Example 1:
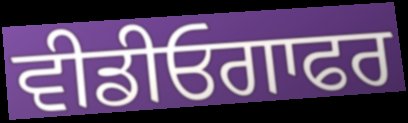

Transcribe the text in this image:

ਵੀਡੀਓਗਾਫਰ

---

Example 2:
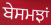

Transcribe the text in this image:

ਬੇਸਮਝਾਂ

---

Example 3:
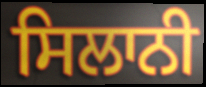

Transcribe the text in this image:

ਸਿਲਾਨੀ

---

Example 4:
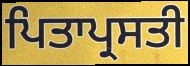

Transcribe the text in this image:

ਪਿਤਾਪ੍ਰਸਤੀ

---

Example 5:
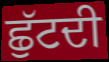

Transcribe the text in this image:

ਛੁੱਟਦੀ